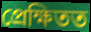
প্ৰেক্ষিতত